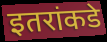
इतरांकडे